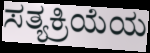
ಸತ್ಯಕ್ರಿಯೆಯ